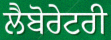
ਲੈਬੋਰੇਟਰੀ